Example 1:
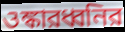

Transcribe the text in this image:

ওঙ্কারধ্বনির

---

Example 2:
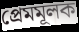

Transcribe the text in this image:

প্রেমমূলক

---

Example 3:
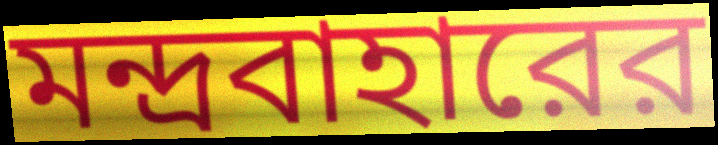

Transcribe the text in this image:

মন্দ্রবাহারের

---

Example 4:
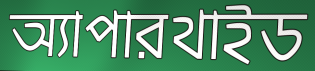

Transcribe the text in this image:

অ্যাপারথাইড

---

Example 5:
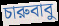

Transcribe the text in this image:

চারুবাবু